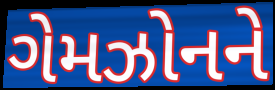
ગેમઝોનને